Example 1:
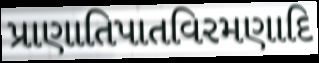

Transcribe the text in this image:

પ્રાણાતિપાતવિરમણાદિ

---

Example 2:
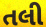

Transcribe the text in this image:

તલી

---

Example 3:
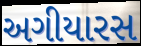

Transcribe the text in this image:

અગીયારસ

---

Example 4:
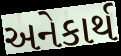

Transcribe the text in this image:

અનેકાર્થ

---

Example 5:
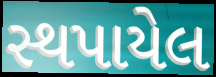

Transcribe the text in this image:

સ્થપાયેલ